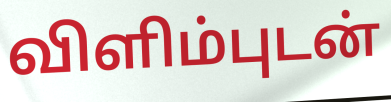
விளிம்புடன்